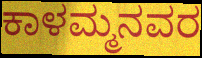
ಕಾಳಮ್ಮನವರ